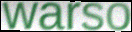
warso